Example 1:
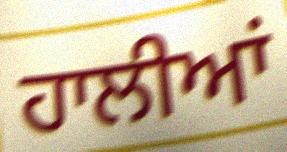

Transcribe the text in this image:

ਹਾਲੀਆਂ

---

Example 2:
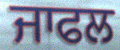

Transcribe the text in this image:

ਜਾਫਲ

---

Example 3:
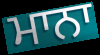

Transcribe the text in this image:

ਮਾਨਾ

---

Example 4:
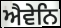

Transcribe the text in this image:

ਐਵੇਨਿ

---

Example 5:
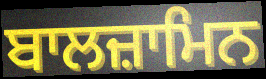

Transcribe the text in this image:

ਬਾਲਜ਼ਾਮਿਨ